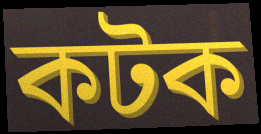
কটক